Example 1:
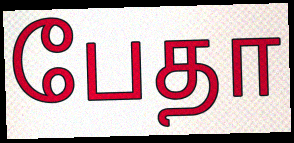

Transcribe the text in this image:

பேதா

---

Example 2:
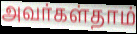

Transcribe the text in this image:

அவர்கள்தாம்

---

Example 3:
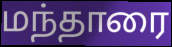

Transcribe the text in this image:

மந்தாரை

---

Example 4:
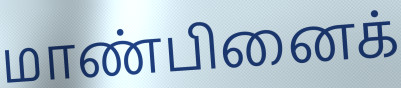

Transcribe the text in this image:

மாண்பினைக்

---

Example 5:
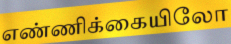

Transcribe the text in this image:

எண்ணிக்கையிலோ